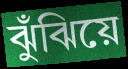
ঝুঁঝিয়ে